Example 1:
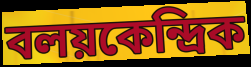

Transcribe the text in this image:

বলয়কেন্দ্রিক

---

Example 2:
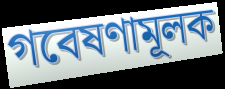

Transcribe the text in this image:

গবেষণামূলক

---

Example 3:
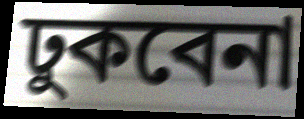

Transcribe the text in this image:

ঢুকবেনা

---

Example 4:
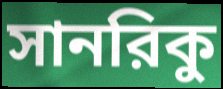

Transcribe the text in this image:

সানরিকু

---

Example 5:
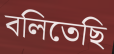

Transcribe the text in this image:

বলিতেছি